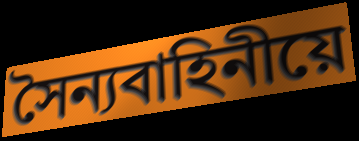
সৈন্যবাহিনীয়ে